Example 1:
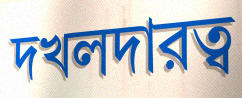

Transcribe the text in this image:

দখলদারত্ব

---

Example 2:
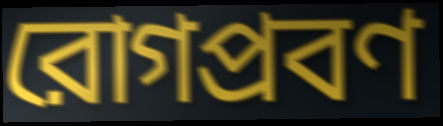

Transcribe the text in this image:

রোগপ্রবণ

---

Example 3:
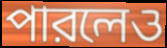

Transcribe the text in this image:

পারলেও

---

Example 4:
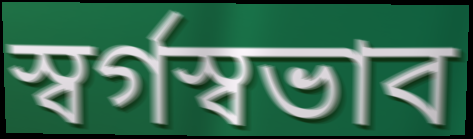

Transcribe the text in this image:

স্বর্গস্বভাব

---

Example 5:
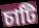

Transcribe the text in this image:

চাটি